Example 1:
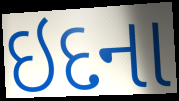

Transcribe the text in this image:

ઇદના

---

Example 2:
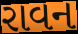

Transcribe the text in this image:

રાવન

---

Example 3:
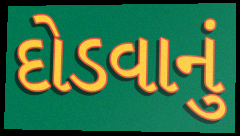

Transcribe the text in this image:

દોડવાનું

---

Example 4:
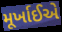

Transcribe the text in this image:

મૂર્ખાઈએ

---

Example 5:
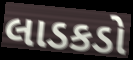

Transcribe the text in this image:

લાડકડો